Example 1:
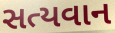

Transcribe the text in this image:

સત્યવાન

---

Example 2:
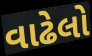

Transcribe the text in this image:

વાઢેલો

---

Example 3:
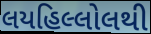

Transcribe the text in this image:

લયહિલ્લોલથી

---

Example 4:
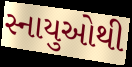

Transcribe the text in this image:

સ્નાયુઓથી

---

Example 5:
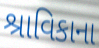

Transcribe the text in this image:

શ્રાવિકાના